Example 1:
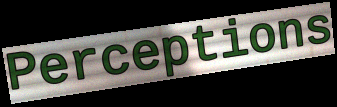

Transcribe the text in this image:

Perceptions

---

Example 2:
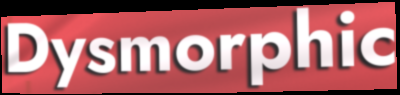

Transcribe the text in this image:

Dysmorphic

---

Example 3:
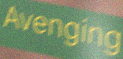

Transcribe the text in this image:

Avenging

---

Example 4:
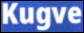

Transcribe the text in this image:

Kugve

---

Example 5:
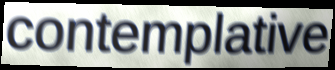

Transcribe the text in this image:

contemplative